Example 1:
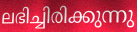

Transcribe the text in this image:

ലഭിച്ചിരിക്കുന്നു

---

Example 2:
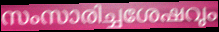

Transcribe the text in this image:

സംസാരിച്ചശേഷവും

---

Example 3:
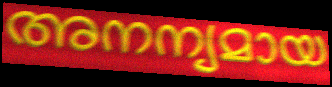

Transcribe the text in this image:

അനന്യമായ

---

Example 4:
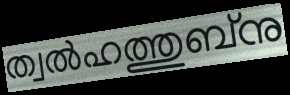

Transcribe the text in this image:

ത്വൽഹത്തുബ്നു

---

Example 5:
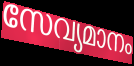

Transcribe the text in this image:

സേവ്യമാനം